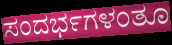
ಸಂದರ್ಭಗಳಂತೂ